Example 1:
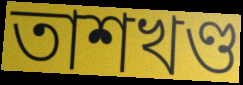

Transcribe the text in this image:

তাশখণ্ড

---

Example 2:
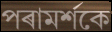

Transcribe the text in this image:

পৰামৰ্শকে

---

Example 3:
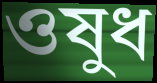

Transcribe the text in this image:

ওষুধ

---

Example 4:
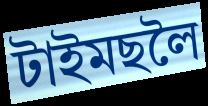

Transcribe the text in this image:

টাইমছলৈ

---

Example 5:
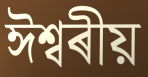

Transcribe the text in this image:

ঈশ্বৰীয়